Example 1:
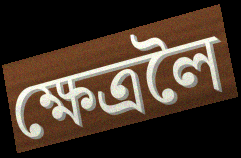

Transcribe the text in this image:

ক্ষেত্ৰলৈ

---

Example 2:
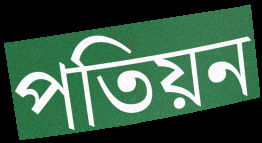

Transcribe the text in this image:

পতিয়ন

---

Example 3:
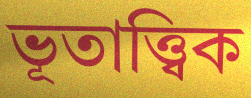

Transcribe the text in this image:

ভূতাত্ত্বিক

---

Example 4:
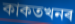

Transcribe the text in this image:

কাকতখনৰ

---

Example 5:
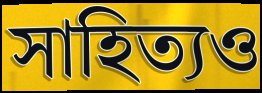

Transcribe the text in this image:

সাহিত্য়ও